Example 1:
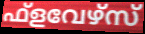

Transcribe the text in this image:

ഫ്ളവേഴ്സ്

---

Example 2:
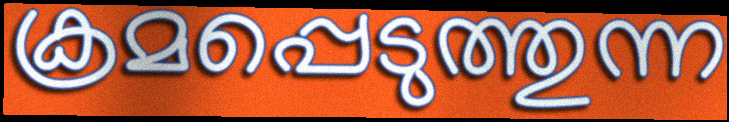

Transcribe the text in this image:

ക്രമപ്പെടുത്തുന്ന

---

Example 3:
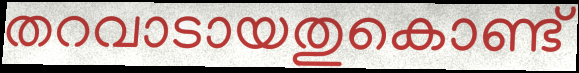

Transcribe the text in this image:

തറവാടായതുകൊണ്ട്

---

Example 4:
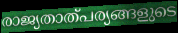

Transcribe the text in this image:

രാജ്യതാത്പര്യങ്ങളുടെ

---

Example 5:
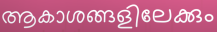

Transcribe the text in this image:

ആകാശങ്ങളിലേക്കും